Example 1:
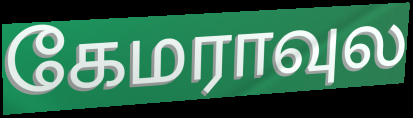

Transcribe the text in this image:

கேமராவுல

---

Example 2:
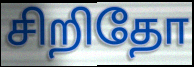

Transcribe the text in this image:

சிறிதோ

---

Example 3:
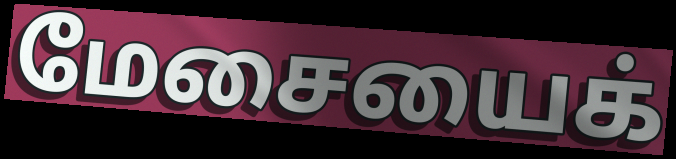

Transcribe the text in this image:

மேசையைக்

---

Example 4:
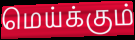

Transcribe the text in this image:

மெய்க்கும்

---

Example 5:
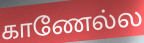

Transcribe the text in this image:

காணேல்ல